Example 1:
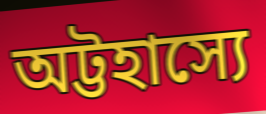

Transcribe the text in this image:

অট্টহাস্যে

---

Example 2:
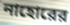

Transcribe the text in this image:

নাহোরের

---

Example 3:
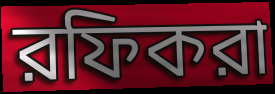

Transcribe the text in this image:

রফিকরা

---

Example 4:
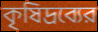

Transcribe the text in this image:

কৃষিদ্রব্যের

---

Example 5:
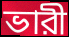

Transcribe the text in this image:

ভারী